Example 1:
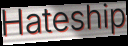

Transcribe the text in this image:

Hateship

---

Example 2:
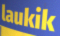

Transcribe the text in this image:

laukik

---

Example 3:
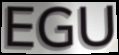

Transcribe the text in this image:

EGU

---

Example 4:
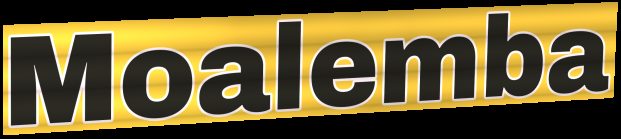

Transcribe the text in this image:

Moalemba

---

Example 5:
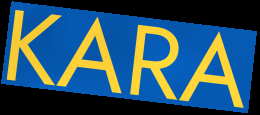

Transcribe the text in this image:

KARA